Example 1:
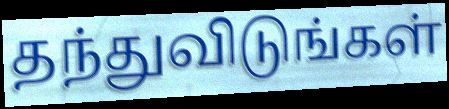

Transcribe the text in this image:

தந்துவிடுங்கள்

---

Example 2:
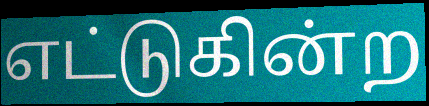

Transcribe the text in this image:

எட்டுகின்ற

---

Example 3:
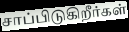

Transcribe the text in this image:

சாப்பிடுகிறீர்கள்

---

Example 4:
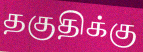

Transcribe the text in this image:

தகுதிக்கு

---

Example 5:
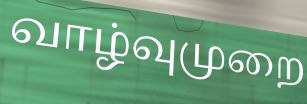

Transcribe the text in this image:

வாழ்வுமுறை